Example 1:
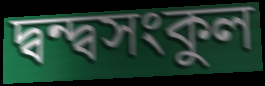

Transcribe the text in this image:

দ্বন্দ্বসংকুল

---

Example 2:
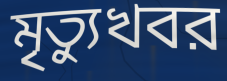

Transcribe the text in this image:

মৃত্যুখবর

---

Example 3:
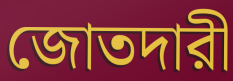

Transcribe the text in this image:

জোতদারী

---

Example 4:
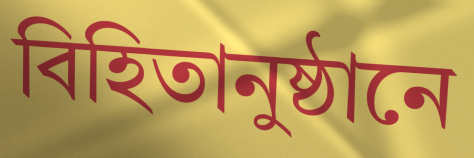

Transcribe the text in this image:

বিহিতানুষ্ঠানে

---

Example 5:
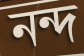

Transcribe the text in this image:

নন্দ